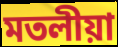
মতলীয়া